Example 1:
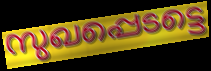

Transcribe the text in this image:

സുഖപ്പെടട്ടെ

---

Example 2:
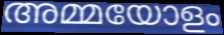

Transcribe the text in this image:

അമ്മയോളം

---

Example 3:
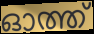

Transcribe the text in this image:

ഓത്ത്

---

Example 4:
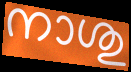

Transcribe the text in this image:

നാശു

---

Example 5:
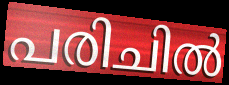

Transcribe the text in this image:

പരിചിൽ